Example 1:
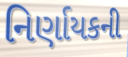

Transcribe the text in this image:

નિર્ણાયકની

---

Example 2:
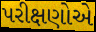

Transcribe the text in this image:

પરીક્ષણોએ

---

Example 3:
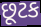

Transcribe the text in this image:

છૂટક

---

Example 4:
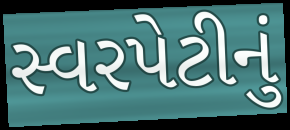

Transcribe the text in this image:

સ્વરપેટીનું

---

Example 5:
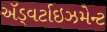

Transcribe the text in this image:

ઍડ્વર્ટાઇઝમેન્ટ